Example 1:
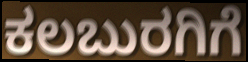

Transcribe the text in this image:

ಕಲಬುರಗಿಗೆ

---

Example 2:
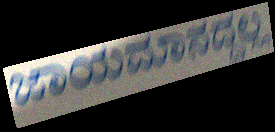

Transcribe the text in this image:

ಜಾಯಮಾನದ್ದಲ್ಲ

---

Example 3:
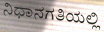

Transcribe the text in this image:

ನಿಧಾನಗತಿಯಲ್ಲಿ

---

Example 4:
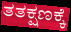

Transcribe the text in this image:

ತತಕ್ಷಣಕ್ಕೆ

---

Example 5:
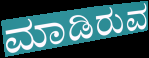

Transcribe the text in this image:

ಮಾಡಿರುವ